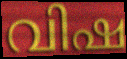
വിഷ